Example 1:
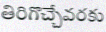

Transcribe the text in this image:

తిరిగొచ్చేవరకు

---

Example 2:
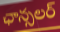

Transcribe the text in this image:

ఛాన్సలర్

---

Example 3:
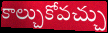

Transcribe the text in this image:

కాల్చుకోవచ్చు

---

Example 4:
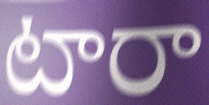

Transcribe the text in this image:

టారా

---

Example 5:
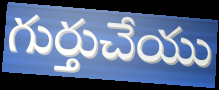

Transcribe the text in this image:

గుర్తుచేయు